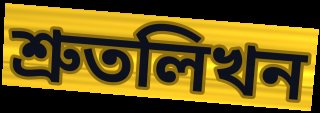
শ্রুতলিখন